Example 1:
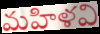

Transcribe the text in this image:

మహిళవి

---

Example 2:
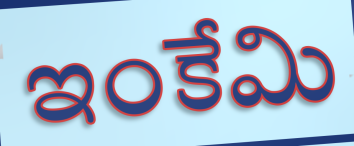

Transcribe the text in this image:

ఇంకేమి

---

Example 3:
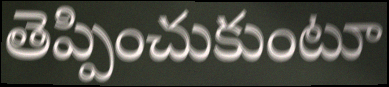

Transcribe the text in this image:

తెప్పించుకుంటూ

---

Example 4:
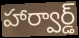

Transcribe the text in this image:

హార్వార్డ్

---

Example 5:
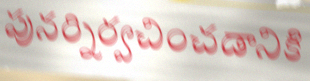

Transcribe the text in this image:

పునర్నిర్వచించడానికి